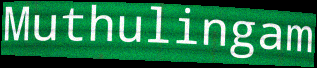
Muthulingam